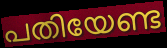
പതിയേണ്ട